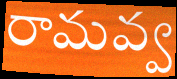
రామవ్వ